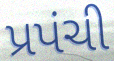
પ્રપંચી